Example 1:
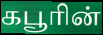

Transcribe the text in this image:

கபூரின்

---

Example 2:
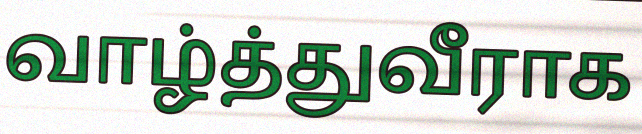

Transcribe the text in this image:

வாழ்த்துவீராக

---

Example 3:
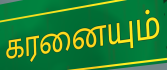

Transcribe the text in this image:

கரனையும்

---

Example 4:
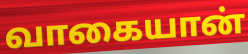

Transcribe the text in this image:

வாகையான்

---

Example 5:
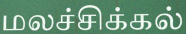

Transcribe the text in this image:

மலச்சிக்கல்